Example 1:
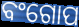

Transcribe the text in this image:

ବଂଗୋପ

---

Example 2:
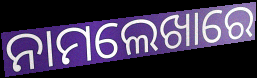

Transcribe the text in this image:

ନାମଲେଖାରେ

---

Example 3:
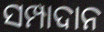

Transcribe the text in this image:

ସମ୍ପାଦାନ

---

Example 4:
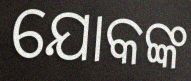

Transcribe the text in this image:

ଯୋକଙ୍କ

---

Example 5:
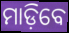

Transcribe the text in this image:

ମାଡ଼ିବେ